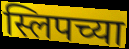
स्लिपच्या